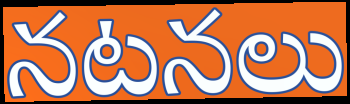
నటనలు